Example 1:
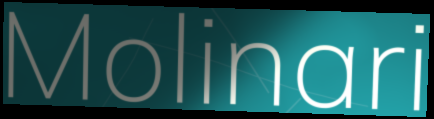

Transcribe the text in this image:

Molinari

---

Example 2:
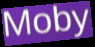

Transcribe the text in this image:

Moby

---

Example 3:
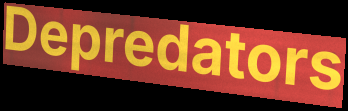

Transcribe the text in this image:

Depredators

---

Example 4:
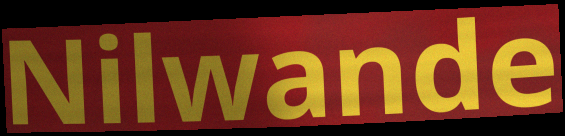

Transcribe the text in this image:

Nilwande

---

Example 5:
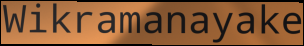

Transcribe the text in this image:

Wikramanayake